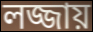
লজ্জায়